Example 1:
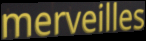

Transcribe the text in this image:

merveilles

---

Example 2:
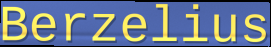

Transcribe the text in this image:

Berzelius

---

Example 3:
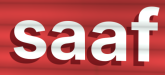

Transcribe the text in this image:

saaf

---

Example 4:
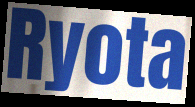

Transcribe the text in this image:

Ryota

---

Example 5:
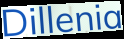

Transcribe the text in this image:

Dillenia